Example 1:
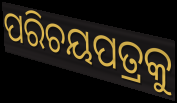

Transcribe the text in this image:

ପରିଚୟପତ୍ରକୁ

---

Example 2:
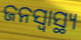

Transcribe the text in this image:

ଜନସ୍ବାସ୍ଥ୍ୟ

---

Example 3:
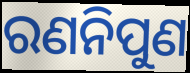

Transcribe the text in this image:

ରଣନିପୁଣ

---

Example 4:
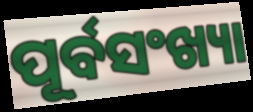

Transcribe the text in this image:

ପୂର୍ବସଂଖ୍ୟା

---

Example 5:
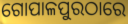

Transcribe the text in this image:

ଗୋପାଳପୁରଠାରେ